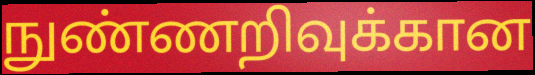
நுண்ணறிவுக்கான